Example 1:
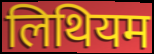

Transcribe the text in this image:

लिथियम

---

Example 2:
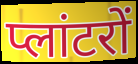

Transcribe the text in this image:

प्लांटरों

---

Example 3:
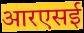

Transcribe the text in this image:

आरएसई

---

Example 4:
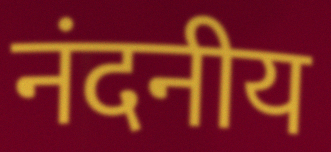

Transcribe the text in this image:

नंदनीय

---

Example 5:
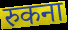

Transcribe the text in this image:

रुकना